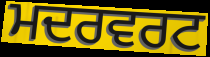
ਮਦਰਵਰਟ